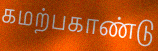
கமற்பகாண்டு